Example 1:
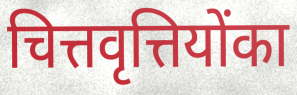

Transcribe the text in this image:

चित्तवृत्तियोंका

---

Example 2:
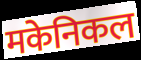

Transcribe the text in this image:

मकेनिकल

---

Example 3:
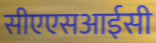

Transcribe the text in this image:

सीएएसआईसी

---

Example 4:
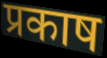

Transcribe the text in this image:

प्रकाष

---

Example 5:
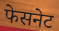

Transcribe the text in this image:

फेसनेट